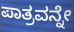
ಪಾತ್ರವನ್ನೇ